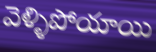
వెళ్ళిపోయాయి